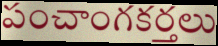
పంచాంగకర్తలు